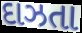
દાઝતા